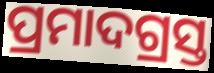
ପ୍ରମାଦଗ୍ରସ୍ତ